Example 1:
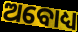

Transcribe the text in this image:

ଅବୋଧ୍ୟ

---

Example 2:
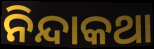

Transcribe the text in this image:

ନିନ୍ଦାକଥା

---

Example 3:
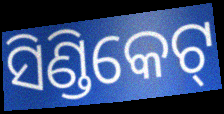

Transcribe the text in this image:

ସିଣ୍ଡିକେଟ୍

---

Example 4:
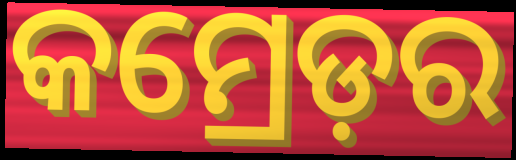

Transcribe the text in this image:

କମ୍ରେଡ଼ର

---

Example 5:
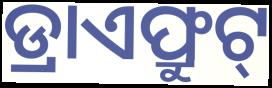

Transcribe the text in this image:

ଡ୍ରାଏଫ୍ରୁଟ୍